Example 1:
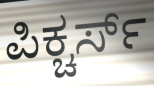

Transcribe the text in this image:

ಪಿಕ್ಚರ್ಸ್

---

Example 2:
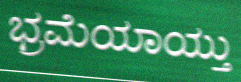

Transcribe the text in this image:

ಭ್ರಮೆಯಾಯ್ತು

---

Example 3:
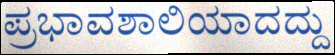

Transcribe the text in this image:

ಪ್ರಭಾವಶಾಲಿಯಾದದ್ದು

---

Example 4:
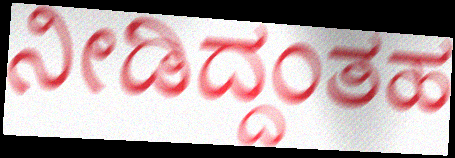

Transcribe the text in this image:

ನೀಡಿದ್ದಂತಹ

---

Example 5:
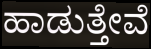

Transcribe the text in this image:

ಹಾಡುತ್ತೇವೆ